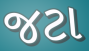
જટા